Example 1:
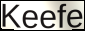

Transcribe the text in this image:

Keefe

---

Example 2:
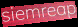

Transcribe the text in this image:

siemreap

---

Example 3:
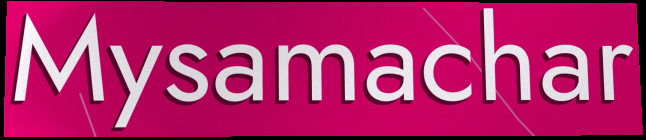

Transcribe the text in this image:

Mysamachar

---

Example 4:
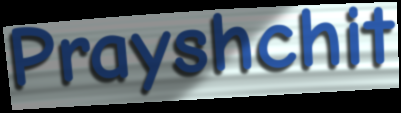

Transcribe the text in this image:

Prayshchit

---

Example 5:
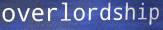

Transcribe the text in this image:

overlordship